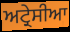
ਅਟ੍ਰੇਸੀਆ